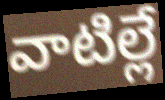
వాటిల్లే